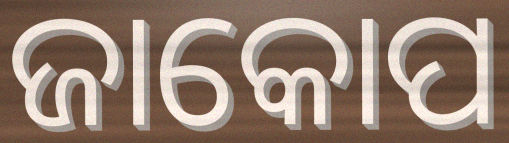
ଜାକୋପ